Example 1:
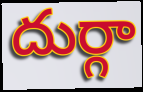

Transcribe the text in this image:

దుర్గా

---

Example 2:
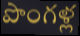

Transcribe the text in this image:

పొంగళ్ల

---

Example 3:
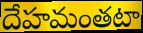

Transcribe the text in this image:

దేహమంతటా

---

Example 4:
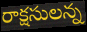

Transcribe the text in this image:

రాక్షసులన్న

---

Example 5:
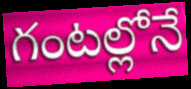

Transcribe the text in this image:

గంటల్లోనే